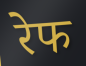
रेफ